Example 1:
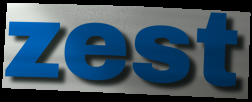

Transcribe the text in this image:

zest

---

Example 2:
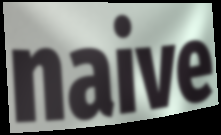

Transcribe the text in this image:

naive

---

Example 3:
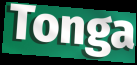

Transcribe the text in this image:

Tonga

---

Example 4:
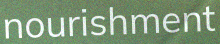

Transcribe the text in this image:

nourishment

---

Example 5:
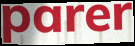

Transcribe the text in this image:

parer